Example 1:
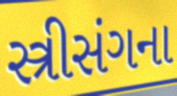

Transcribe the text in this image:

સ્ત્રીસંગના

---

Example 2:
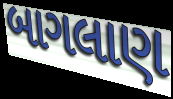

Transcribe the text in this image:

બાગલાણ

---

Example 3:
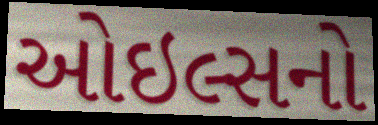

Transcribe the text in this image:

ઓઇલ્સનો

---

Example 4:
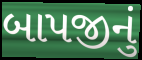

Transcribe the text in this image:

બાપજીનું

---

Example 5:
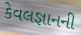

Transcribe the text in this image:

કેવલજ્ઞાનની